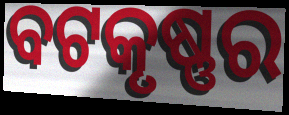
ବଟକୃଷ୍ଣର